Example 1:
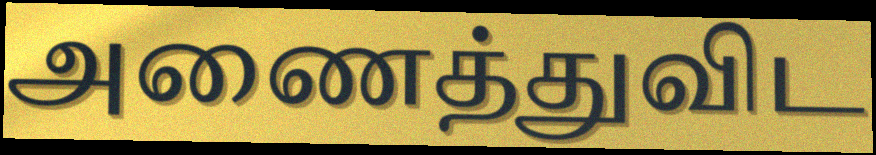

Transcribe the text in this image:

அணைத்துவிட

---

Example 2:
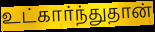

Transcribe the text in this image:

உட்கார்ந்துதான்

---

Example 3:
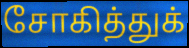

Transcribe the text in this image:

சோகித்துக்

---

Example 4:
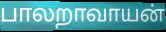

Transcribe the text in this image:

பாலறாவாயன்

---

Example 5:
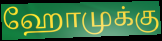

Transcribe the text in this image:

ஹோமுக்கு